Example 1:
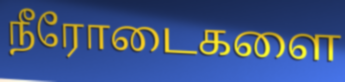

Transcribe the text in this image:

நீரோடைகளை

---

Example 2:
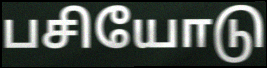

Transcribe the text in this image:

பசியோடு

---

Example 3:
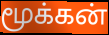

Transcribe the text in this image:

மூக்கன்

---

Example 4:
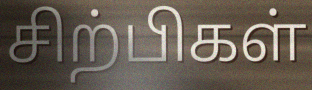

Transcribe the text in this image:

சிற்பிகள்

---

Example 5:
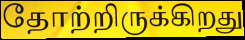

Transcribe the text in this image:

தோற்றிருக்கிறது